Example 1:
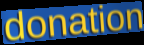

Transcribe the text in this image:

donation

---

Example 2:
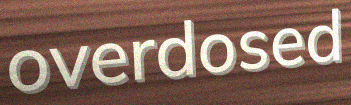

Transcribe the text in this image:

overdosed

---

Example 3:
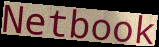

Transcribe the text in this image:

Netbook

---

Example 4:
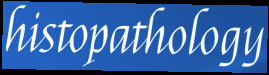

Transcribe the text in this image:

histopathology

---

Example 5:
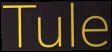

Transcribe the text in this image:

Tule